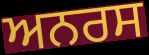
ਅਨਰਸ